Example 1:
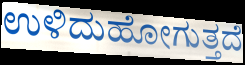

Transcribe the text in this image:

ಉಳಿದುಹೋಗುತ್ತದೆ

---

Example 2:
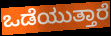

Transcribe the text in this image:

ಒಡೆಯುತ್ತಾರೆ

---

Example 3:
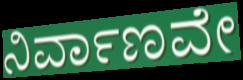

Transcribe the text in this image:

ನಿರ್ವಾಣವೇ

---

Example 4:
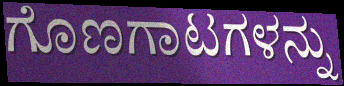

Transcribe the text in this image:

ಗೊಣಗಾಟಗಳನ್ನು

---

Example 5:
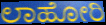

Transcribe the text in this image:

ಲಾಹೋರಿ